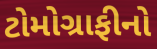
ટોમોગ્રાફીનો